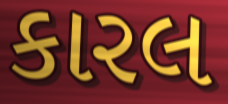
કારલ